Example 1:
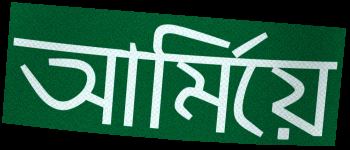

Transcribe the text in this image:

আৰ্মিয়ে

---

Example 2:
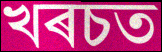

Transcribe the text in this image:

খৰচত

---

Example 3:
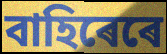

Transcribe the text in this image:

বাহিৰেৰে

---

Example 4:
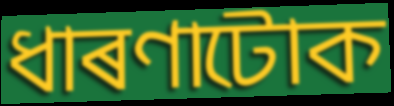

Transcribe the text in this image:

ধাৰণাটোক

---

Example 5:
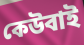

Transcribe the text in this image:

কেউবাই